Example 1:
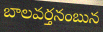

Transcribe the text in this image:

బాలవర్తనంబున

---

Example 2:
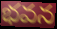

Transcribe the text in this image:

భవన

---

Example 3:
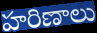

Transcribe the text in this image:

హరిణాలు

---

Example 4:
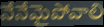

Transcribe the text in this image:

నేనేమైపోవాలి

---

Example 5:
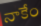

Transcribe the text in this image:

నాకేం